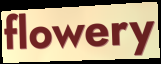
flowery